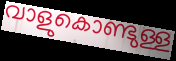
വാളുകൊണ്ടുള്ള